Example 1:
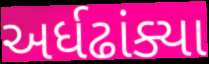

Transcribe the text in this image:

અર્ધઢાંક્યા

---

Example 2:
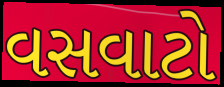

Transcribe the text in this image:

વસવાટો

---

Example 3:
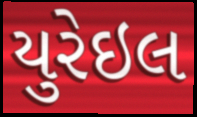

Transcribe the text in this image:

યુરેઇલ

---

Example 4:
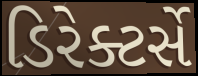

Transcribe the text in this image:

ડિરેક્ટર્સે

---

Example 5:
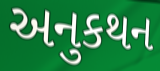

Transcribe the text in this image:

અનુકથન